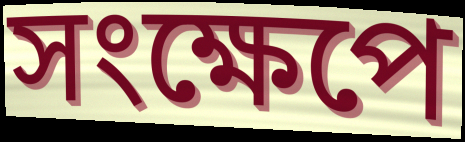
সংক্ষেপে